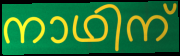
നാഥിന്